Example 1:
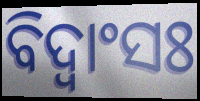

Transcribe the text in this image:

ବିଦ୍ଵାଂସଃ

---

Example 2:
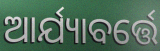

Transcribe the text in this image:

ଆର୍ଯ୍ୟାବର୍ତ୍ତେ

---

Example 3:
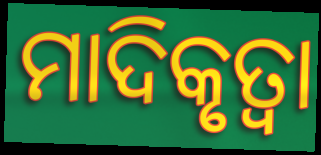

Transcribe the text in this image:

ମାଦିକୃତ୍ୱା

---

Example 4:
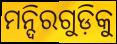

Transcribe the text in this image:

ମନ୍ଦିରଗୁଡ଼ିକୁ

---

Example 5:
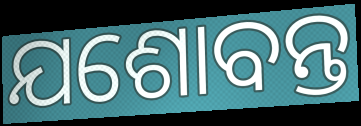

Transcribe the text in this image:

ଯଶୋବନ୍ତ